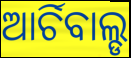
ଆର୍ଚିବାଲ୍ଡ